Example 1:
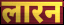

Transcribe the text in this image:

लारन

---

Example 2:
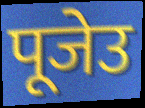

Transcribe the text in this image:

पूजेउ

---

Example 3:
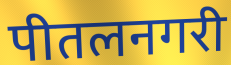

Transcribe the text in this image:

पीतलनगरी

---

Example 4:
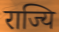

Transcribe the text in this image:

राज्यि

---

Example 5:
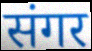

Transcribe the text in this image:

संगर